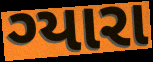
ગ્યારા